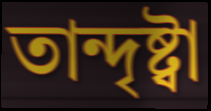
তান্দৃষ্ট্বা